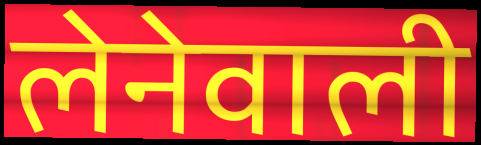
लेनेवाली